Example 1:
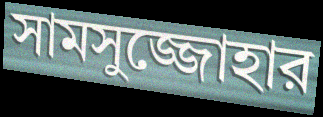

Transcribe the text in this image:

সামসুজ্জোহার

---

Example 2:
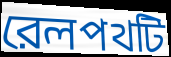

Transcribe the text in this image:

রেলপথটি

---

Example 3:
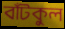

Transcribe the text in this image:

বাঁটকুল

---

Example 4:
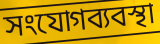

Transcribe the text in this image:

সংযোগব্যবস্থা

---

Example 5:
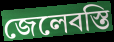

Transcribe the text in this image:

জেলেবস্তি